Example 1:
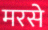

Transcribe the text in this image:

मरसे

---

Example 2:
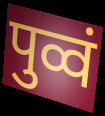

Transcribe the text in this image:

पुव्वं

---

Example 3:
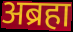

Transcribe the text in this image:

अब्रहा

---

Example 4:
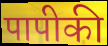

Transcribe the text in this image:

पापीकी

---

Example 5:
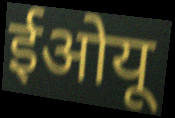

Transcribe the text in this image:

ईओयू